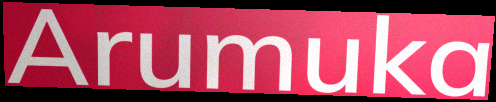
Arumuka